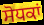
ਸੋਧਕਾਂ